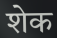
शेक